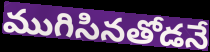
ముగిసినతోడనే